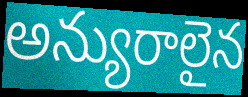
అన్యురాలైన